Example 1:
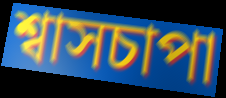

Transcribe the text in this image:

শ্বাসচাপা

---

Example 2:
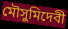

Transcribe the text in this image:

মৌসুমিদেবী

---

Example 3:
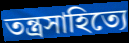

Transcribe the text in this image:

তন্ত্রসাহিত্যে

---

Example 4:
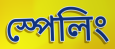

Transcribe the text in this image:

স্পেলিং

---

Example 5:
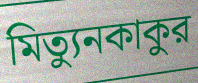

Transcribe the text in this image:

মিত্যুনকাকুর